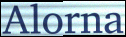
Alorna